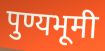
पुण्यभूमी